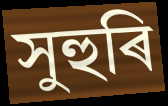
সুহুৰি